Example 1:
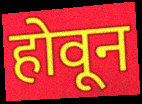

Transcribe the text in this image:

होवून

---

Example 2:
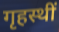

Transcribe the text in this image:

गृहस्थीं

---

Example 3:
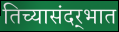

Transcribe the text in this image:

तिच्यासंदर्भात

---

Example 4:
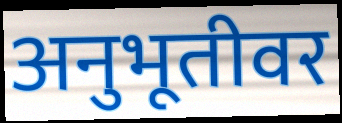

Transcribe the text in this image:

अनुभूतीवर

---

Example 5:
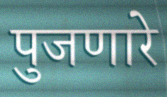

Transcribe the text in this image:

पुजणारे